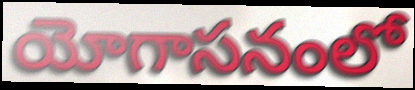
యోగాసనంలో